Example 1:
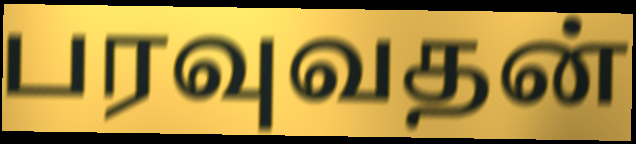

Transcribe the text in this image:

பரவுவதன்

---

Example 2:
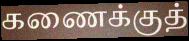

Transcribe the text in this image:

கணைக்குத்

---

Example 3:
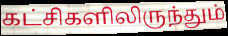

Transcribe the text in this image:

கட்சிகளிலிருந்தும்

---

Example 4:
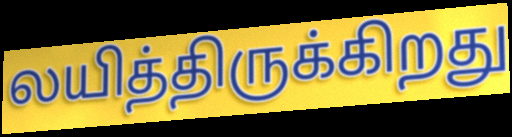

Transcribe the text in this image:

லயித்திருக்கிறது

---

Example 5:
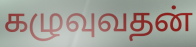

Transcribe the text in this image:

கழுவுவதன்